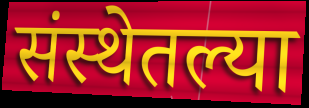
संस्थेतल्या